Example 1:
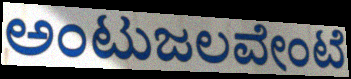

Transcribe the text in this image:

ಅಂಟುಜಲವೇಂಟೆ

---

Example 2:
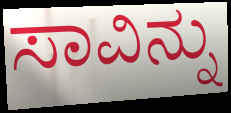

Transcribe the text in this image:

ಸಾವಿನ್ನು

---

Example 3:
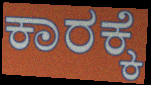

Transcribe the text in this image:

ಕಾರಕ್ಕೆ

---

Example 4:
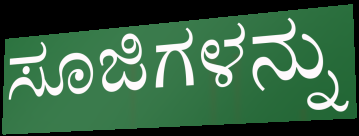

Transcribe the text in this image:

ಸೂಜಿಗಳನ್ನು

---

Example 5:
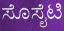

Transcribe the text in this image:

ಸೊಸೈಟಿ